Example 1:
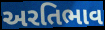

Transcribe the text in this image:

અરતિભાવ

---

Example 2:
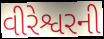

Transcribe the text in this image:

વીરેશ્વરની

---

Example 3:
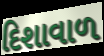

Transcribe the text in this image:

દિશાવાળ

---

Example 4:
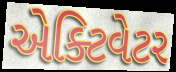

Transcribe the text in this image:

એક્ટિવેટર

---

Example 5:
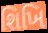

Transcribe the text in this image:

શિખિ